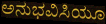
ಅನುಭವಿಸಿಯೂ